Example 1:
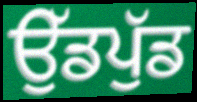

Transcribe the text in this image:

ਉੱਡਪੁੱਡ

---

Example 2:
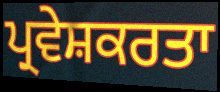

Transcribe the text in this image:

ਪ੍ਰਵੇਸ਼ਕਰਤਾ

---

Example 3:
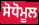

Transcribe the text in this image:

ਸੋਧੋਮੂਲ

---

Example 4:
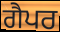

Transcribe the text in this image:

ਗੈਪਰ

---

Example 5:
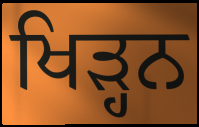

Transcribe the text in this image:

ਖਿੜ੍ਹਨ